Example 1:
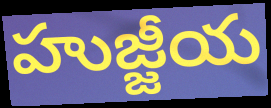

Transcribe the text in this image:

హుజ్జీయ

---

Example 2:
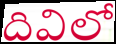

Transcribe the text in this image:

దివిలో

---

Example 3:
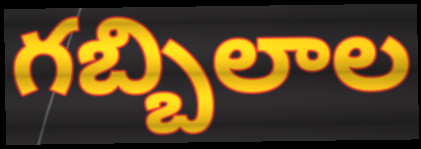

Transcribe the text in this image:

గబ్బిలాల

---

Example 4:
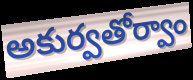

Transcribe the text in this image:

అకుర్వతోర్వాం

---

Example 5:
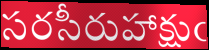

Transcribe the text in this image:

సరసీరుహాక్షుఁ